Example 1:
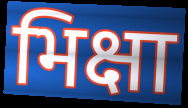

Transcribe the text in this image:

भिक्षा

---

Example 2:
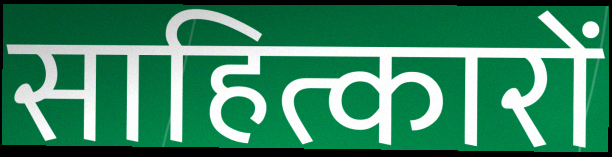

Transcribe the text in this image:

साहित्कारों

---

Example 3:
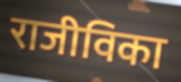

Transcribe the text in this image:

राजीविका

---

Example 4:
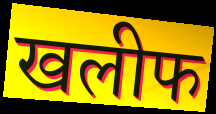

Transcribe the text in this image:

खलीफ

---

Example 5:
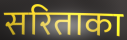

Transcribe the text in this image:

सरिताका